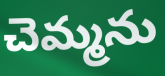
చెమ్మను